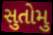
સુતોમુ